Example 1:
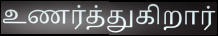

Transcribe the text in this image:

உணர்த்துகிறார்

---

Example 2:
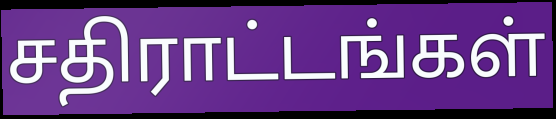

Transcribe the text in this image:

சதிராட்டங்கள்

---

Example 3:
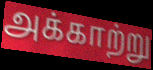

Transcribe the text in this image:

அக்காற்று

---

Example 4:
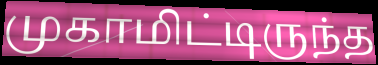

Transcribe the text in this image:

முகாமிட்டிருந்த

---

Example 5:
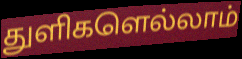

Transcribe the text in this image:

துளிகளெல்லாம்